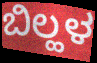
ಬಿಲ್ಹಳ